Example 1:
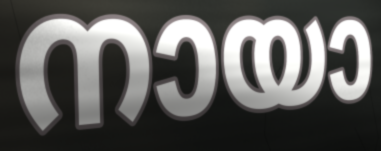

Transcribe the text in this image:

നായാ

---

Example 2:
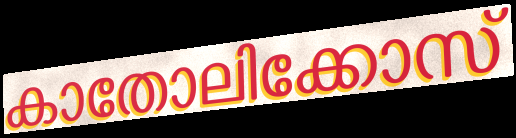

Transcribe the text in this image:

കാതോലിക്കോസ്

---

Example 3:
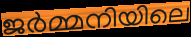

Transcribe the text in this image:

ജർമ്മനിയിലെ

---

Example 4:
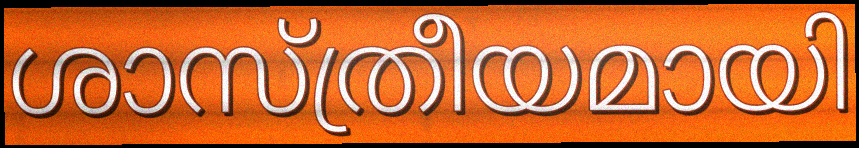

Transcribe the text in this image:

ശാസ്ത്രീയമായി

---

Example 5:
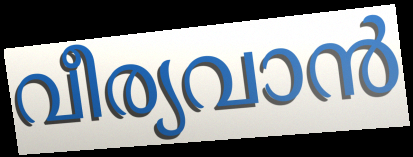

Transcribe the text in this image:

വീര്യവാൻ